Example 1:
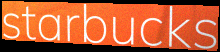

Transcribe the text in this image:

starbucks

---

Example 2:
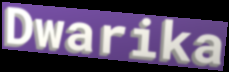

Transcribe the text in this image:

Dwarika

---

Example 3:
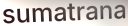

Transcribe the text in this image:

sumatrana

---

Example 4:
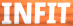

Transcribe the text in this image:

INFIT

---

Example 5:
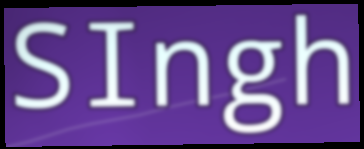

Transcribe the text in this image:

SIngh